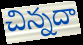
చిన్నదా